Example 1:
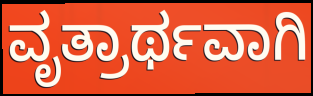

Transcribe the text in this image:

ವೃತ್ರಾರ್ಥವಾಗಿ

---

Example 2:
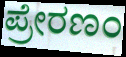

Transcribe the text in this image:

ಪ್ರೇರಣಂ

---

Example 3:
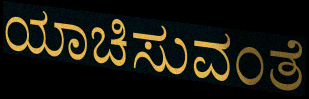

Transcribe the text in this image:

ಯಾಚಿಸುವಂತೆ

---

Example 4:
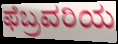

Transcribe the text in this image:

ಫೆಬ್ರವರಿಯ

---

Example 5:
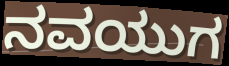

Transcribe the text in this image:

ನವಯುಗ